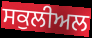
ਸਕੁਲੀਅਲ